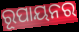
ରୂପାୟନର